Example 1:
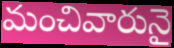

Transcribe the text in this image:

మంచివారునై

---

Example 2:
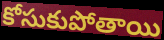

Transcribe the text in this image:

కోసుకుపోతాయి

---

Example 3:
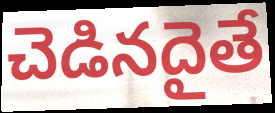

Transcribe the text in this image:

చెడినదైతే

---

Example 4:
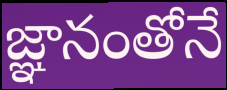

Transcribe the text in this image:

జ్ఞానంతోనే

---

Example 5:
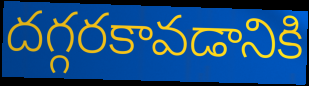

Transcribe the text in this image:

దగ్గరకావడానికి